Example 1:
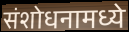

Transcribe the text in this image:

संशोधनामध्ये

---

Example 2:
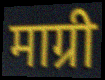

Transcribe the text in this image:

माग्री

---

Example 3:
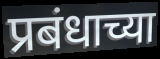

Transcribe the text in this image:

प्रबंधाच्या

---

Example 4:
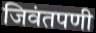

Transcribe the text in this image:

जिवंतपणी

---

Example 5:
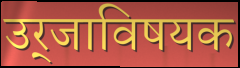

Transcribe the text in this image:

उर्जाविषयक